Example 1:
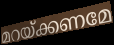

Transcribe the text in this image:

മറയ്ക്കണമേ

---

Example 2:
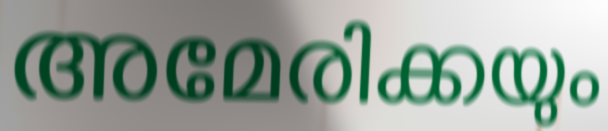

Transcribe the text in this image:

അമേരിക്കയും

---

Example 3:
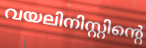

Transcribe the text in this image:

വയലിനിസ്റ്റിന്റെ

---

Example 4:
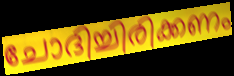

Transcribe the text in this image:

ചോദിച്ചിരിക്കണം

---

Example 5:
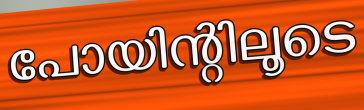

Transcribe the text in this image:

പോയിന്റിലൂടെ